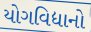
યોગવિદ્યાનો